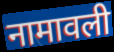
नामावली